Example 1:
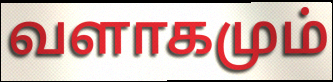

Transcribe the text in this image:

வளாகமும்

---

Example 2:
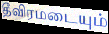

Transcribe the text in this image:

தீவிரமடையும்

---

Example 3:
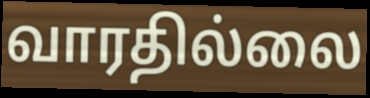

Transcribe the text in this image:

வாரதில்லை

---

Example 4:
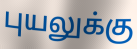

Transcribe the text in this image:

புயலுக்கு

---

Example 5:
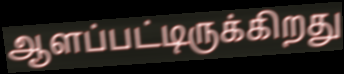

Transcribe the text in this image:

ஆளப்பட்டிருக்கிறது